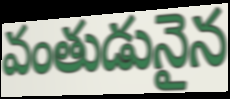
వంతుడునైన